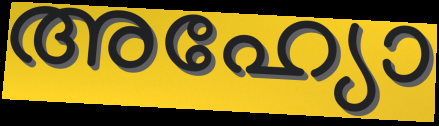
അഹ്യോ